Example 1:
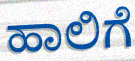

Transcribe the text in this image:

ಹಾಲಿಗೆ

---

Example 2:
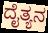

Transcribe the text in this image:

ದೈತ್ಯನ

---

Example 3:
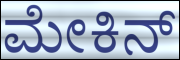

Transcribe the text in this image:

ಮೇಕಿನ್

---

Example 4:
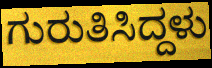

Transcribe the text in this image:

ಗುರುತಿಸಿದ್ದಳು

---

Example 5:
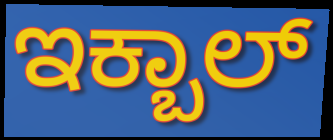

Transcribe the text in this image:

ಇಕ್ಬಾಲ್